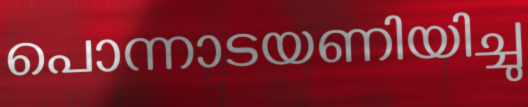
പൊന്നാടയണിയിച്ചു